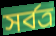
সর্বত্র